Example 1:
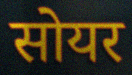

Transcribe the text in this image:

सोयर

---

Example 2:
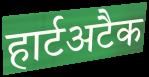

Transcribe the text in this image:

हार्टअटैक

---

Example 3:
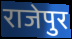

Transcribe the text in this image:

राजेपुर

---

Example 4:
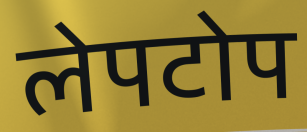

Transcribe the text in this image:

लेपटोप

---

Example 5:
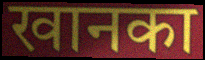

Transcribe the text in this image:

खानका